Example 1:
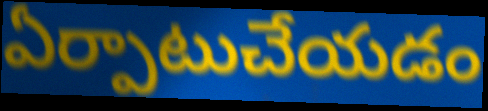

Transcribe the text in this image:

ఏర్పాటుచేయడం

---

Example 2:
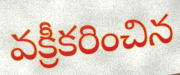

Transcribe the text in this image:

వక్రీకరించిన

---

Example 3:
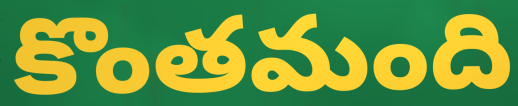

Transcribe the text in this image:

కొంతమంది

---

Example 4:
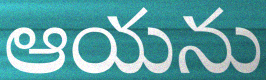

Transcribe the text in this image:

ఆయను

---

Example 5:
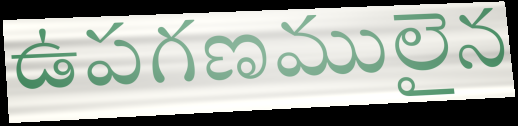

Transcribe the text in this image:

ఉపగణములైన